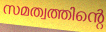
സമത്വത്തിന്റെ